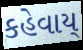
કહેવાય્